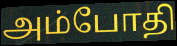
அம்போதி